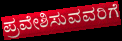
ಪ್ರವೇಶಿಸುವವರಿಗೆ